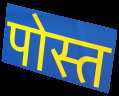
पोस्त